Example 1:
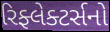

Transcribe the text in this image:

રિફ્લેક્ટર્સનો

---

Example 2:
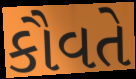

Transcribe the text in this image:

કૌવતે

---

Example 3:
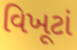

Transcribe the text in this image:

વિખૂટાં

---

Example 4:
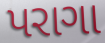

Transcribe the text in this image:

પરાગા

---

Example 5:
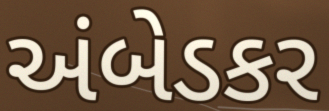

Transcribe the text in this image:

અંબેડકર